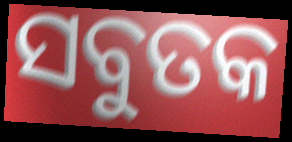
ସବୁତକ